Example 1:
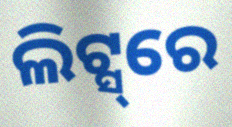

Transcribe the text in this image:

ଲିଟ୍ସ୍‌ରେ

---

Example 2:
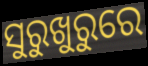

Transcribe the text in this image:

ସୁରୁଖୁରୁରେ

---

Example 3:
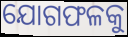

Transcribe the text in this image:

ଯୋଗଫଳକୁ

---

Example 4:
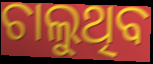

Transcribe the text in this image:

ଚାଲୁଥିବ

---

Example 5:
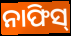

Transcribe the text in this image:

ନାଫିସ୍